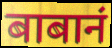
बाबानं